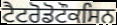
ਟੈਟਰੋਡੋਟੌਕਸਿਨ